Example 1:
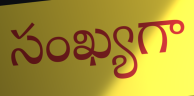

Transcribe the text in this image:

సంఖ్యగా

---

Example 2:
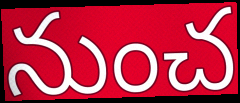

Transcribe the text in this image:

నుంచ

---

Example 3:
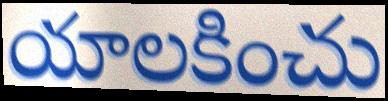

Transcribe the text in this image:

యాలకించు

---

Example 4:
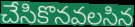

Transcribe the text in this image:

చేసికొనవలసిన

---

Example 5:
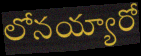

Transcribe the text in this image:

లోనయ్యారో